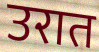
उरात